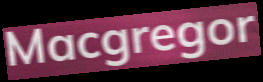
Macgregor